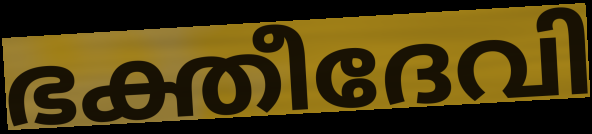
ഭക്തീദേവി